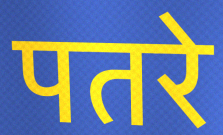
पतरे